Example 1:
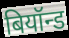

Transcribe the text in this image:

बियॉन्ड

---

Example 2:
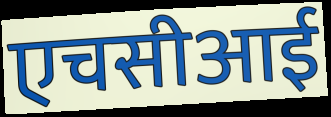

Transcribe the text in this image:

एचसीआई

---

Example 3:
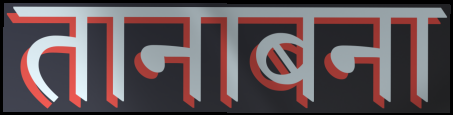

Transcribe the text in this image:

तानाबना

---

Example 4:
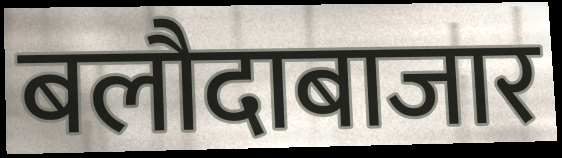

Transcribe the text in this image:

बलौदाबाजार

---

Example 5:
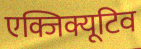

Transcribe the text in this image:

एक्जिक्यूटिव